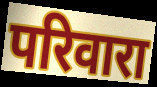
परिवारा